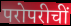
परोपरीचीं